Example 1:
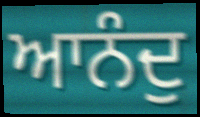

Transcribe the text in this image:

ਆਨੰਦੁ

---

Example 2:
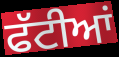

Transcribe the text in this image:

ਫੱਟੀਆਂ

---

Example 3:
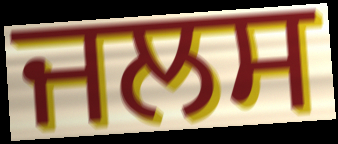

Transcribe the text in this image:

ਜਲਸ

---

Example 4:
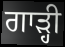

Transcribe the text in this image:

ਗਾੜ੍ਹੀ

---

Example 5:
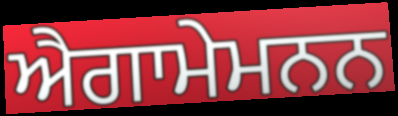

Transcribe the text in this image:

ਐਗਾਮੇਮਨਨ